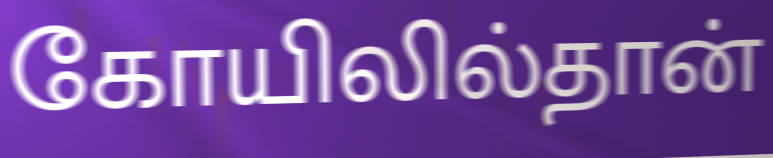
கோயிலில்தான்